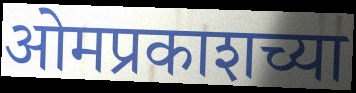
ओमप्रकाशच्या